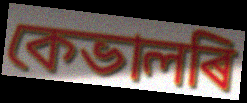
কেভালৰি